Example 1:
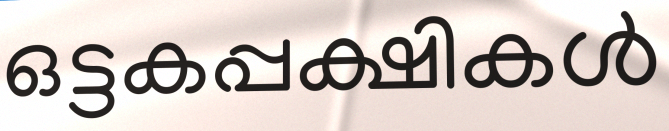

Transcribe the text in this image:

ഒട്ടകപ്പക്ഷികൾ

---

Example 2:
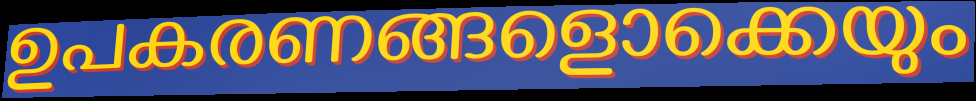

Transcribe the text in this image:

ഉപകരണങ്ങളൊക്കെയും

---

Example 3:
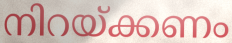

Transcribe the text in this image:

നിറയ്ക്കണം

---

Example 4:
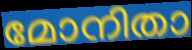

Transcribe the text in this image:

മോനിതാ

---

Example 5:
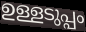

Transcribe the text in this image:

ഉള്ളടുപ്പം